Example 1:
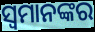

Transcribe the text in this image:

ସ୍ୱମାନଙ୍କର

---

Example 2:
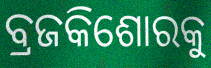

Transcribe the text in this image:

ବ୍ରଜକିଶୋରକୁ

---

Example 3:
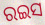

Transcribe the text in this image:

ରଇସ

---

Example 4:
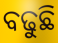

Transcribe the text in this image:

ବଢୁଛି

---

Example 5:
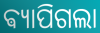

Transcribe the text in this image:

ଵ୍ୟାପିଗଲା